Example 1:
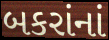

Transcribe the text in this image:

બકરાંનાં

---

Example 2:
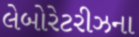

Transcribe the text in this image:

લેબોરેટરીઝના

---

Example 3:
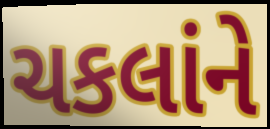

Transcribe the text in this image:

ચકલાંને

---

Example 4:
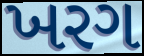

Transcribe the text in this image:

ખરગ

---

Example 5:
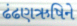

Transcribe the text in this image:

ઢંઢણઋષિને